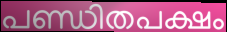
പണ്ഡിതപക്ഷം